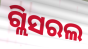
ଗ୍ଲିସରଲ